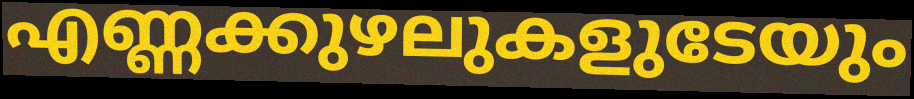
എണ്ണക്കുഴലുകളുടേയും